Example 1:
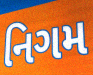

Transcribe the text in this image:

નિગમ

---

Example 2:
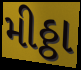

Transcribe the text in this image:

મીઠ્ઠા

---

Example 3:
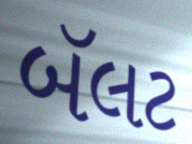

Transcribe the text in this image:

બૅલટ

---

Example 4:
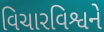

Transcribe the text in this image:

વિચારવિશ્વને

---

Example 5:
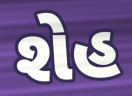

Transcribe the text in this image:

શેહ